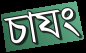
চাযং